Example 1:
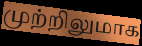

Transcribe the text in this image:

முற்றிலுமாக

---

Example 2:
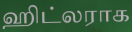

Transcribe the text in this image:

ஹிட்லராக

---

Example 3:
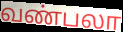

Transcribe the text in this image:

வண்பலா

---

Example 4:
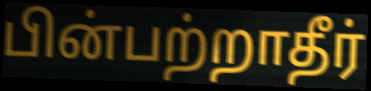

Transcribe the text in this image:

பின்பற்றாதீர்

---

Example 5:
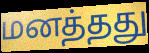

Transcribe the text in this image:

மனத்தது